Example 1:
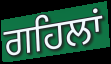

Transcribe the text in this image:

ਗਹਿਲਾਂ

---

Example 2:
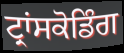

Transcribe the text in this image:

ਟ੍ਰਾਂਸਕੋਡਿੰਗ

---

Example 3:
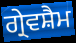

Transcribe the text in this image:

ਗ੍ਰੇਵਸ਼ੈਮ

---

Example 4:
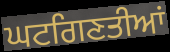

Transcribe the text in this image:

ਘਟਗਿਣਤੀਆਂ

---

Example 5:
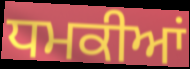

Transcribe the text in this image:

ਧਮਕੀਆਂ